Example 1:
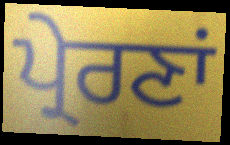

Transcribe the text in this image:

ਪ੍ਰੇਰਣਾਂ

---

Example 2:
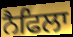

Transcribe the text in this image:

ਨੈਫਿਲਾ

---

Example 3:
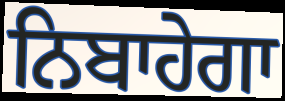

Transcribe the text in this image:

ਨਿਬਾਹੇਗਾ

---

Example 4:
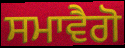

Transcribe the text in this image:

ਸਮਾਵੈਗੋ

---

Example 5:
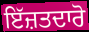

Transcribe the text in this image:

ਇੱਜ਼ਤਦਾਰੋ